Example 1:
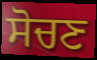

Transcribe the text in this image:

ਸੋਚਣ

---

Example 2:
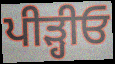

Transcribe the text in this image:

ਪੀੜ੍ਹੀਓ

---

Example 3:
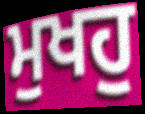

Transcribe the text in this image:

ਮੁਖਹੁ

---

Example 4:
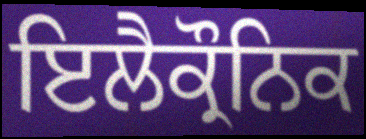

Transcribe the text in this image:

ਇਲੈਕ੍ਰੌਨਿਕ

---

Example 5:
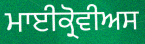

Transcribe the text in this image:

ਮਾਈਕ੍ਰੋਵੀਅਸ